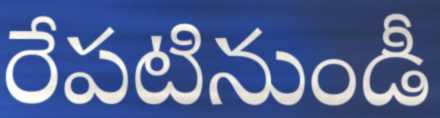
రేపటినుండీ